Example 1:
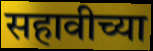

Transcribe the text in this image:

सहावीच्या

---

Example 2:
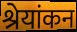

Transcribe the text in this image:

श्रेयांकन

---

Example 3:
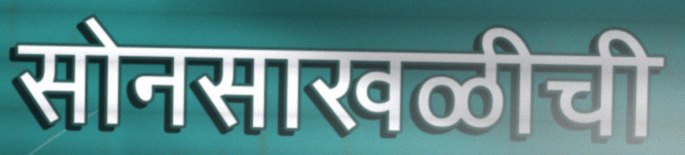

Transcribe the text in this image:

सोनसाखळीची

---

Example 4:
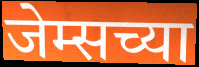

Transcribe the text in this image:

जेम्सच्या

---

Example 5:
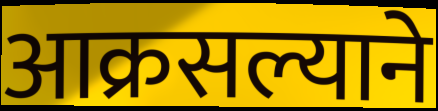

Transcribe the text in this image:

आक्रसल्याने